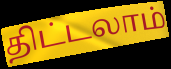
திட்டலாம்